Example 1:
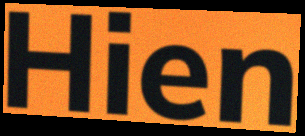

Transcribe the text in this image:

Hien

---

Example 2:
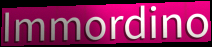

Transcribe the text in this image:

Immordino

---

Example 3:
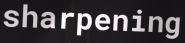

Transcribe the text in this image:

sharpening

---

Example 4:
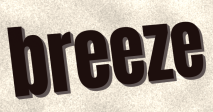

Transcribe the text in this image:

breeze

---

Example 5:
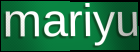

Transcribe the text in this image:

mariyu